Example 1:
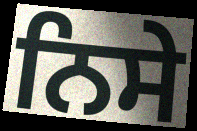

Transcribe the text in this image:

ਨਿਸੇ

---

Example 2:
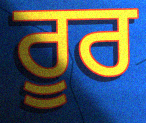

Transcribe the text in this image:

ਰੂਰ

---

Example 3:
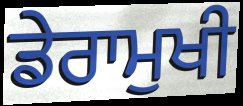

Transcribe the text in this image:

ਡੇਰਾਮੁਖੀ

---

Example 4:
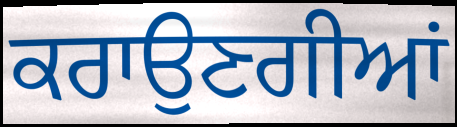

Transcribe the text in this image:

ਕਰਾਉਣਗੀਆਂ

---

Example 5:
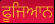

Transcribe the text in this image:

ਫੂਜਿਆਨ